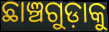
ଛାଞ୍ଚଗୁଡ଼ାକୁ